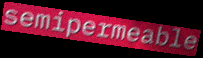
semipermeable